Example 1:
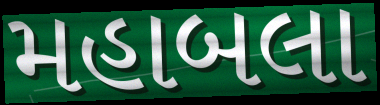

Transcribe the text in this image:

મહાબલા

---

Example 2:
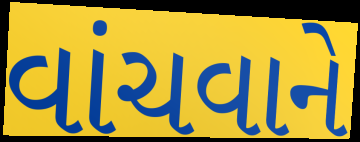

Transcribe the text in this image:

વાંચવાને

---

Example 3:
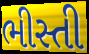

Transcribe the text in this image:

ભીસ્તી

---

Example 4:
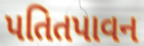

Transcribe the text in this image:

પતિતપાવન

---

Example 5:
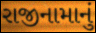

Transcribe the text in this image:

રાજીનામાનું